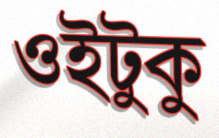
ওইটুকু